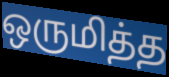
ஒருமித்த